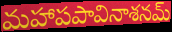
మహాపపావినాశనమ్